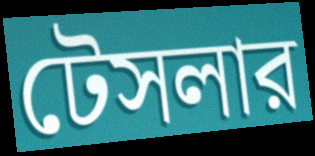
টেসলার